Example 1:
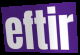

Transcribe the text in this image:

eftir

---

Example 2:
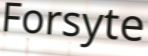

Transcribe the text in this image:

Forsyte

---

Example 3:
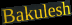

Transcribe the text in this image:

Bakulesh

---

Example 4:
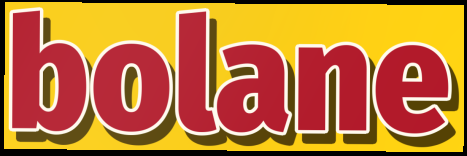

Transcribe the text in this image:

bolane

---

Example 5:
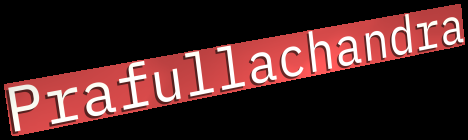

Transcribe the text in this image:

Prafullachandra